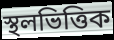
স্থলভিত্তিক